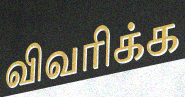
விவரிக்க